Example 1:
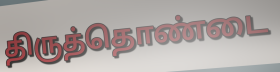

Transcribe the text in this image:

திருத்தொண்டை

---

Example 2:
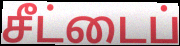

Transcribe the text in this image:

சீட்டைப்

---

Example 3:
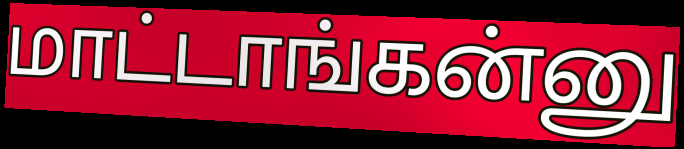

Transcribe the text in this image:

மாட்டாங்கன்னு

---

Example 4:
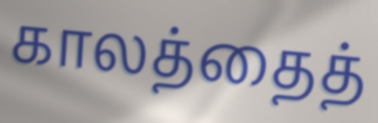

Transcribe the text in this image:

காலத்தைத்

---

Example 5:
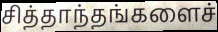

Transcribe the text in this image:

சித்தாந்தங்களைச்